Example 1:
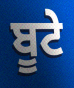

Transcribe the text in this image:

ਬੂਟੇ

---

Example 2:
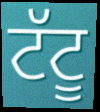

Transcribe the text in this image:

ਟੱਟੂ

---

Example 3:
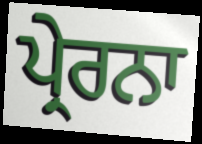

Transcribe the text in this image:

ਪ੍ਰੇਰਨਾ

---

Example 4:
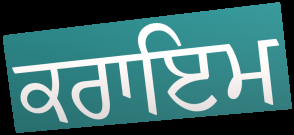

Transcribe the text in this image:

ਕਰਾਇਮ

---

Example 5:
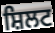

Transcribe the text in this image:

ਸ਼ਿਲਟ